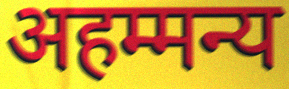
अहम्मन्य